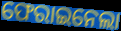
ଫେରାଇନେଲା